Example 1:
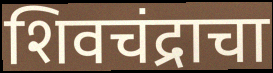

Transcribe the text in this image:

शिवचंद्राचा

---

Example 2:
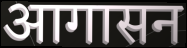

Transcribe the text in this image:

आगासन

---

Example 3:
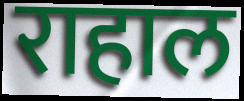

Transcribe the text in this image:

राहाल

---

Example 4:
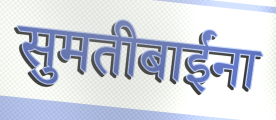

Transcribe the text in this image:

सुमतीबाईंना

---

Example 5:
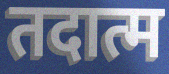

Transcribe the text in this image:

तदात्म